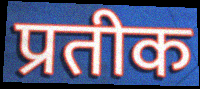
प्रतीक